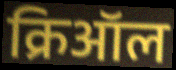
क्रिऑल